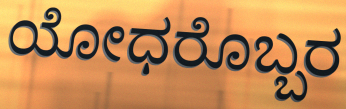
ಯೋಧರೊಬ್ಬರ